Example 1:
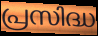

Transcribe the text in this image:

പ്രസിദ്ധ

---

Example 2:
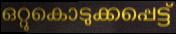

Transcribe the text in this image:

ഒറ്റുകൊടുക്കപ്പെട്ട്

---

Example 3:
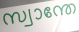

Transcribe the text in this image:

സ്വാന്തേ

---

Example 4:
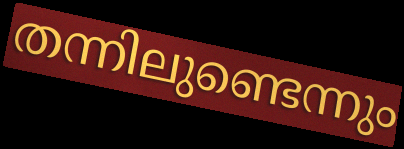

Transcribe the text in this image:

തന്നിലുണ്ടെന്നും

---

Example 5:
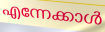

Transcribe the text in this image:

എന്നേക്കാൾ